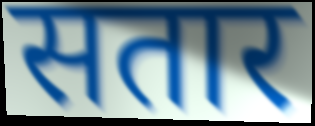
सतार